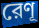
রেণূ